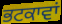
ਭਟਕਾਵਾਂ